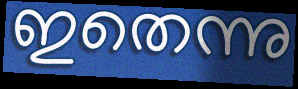
ഇതെന്നു